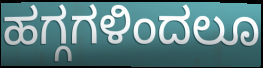
ಹಗ್ಗಗಳಿಂದಲೂ